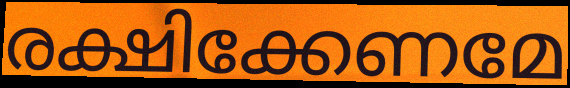
രക്ഷിക്കേണമേ